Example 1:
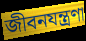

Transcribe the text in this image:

জীবনযন্ত্রণা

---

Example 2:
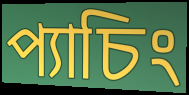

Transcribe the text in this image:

প্যাচিং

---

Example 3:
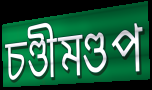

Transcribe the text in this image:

চণ্ডীমণ্ডপ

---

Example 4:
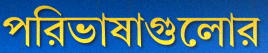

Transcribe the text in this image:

পরিভাষাগুলোর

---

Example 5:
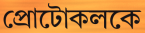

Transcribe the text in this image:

প্রোটোকলকে